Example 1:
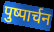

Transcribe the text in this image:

पुष्पार्चन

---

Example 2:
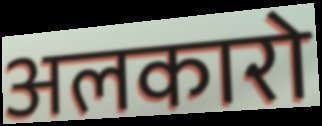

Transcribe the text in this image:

अलकारो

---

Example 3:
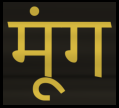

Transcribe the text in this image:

मूंग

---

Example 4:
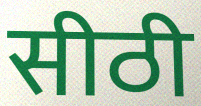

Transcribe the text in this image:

सीठी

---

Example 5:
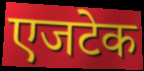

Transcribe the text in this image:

एजटेक